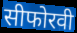
सीफोरवी